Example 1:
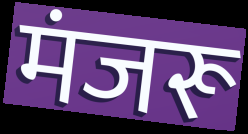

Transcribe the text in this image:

मंजरू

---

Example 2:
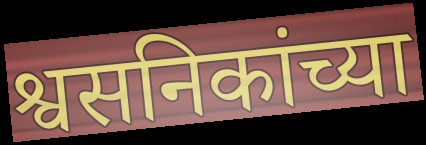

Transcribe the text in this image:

श्वसनिकांच्या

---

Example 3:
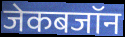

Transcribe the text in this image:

जेकबजॉन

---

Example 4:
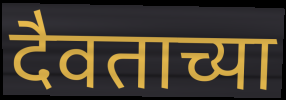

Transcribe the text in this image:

दैवताच्या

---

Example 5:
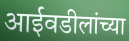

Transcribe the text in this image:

आईवडीलांच्या